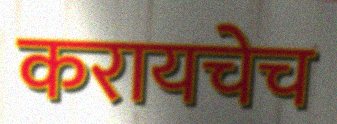
करायचेच